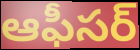
ఆఫీసర్